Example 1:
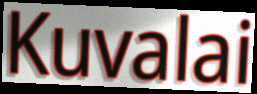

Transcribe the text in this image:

Kuvalai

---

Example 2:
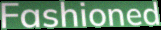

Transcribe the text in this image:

Fashioned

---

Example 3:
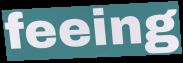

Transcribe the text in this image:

feeing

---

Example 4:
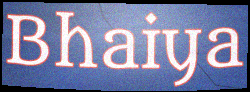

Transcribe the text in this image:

Bhaiya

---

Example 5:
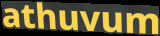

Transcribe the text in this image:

athuvum